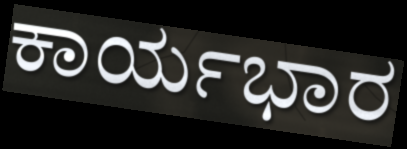
ಕಾರ್ಯಭಾರ